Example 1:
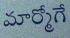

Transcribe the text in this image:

మార్మోగే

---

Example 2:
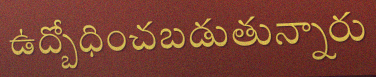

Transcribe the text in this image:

ఉద్బోధించబడుతున్నారు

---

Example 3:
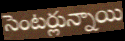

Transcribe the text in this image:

సెంటర్లున్నాయి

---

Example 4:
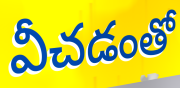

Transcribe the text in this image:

వీచడంతో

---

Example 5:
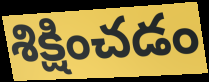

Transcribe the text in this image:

శిక్షించడం